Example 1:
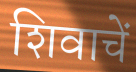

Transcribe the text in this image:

शिवाचें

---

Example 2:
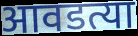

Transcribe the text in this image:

आवडत्या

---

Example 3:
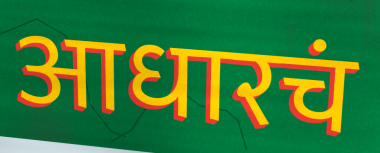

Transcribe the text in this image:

आधारचं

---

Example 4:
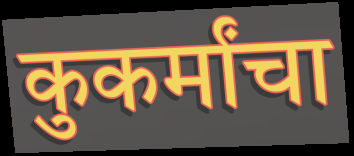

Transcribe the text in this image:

कुकर्मांचा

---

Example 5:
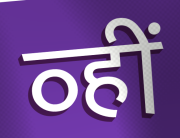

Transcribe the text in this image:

व्हीं